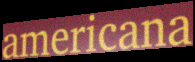
americana